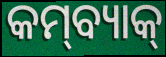
କମ୍‌ବ୍ୟାକ୍